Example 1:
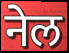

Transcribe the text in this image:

नेल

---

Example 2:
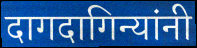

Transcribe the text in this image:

दागदागिन्यांनी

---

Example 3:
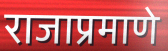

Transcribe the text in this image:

राजाप्रमाणे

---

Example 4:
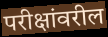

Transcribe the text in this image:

परीक्षांवरील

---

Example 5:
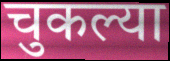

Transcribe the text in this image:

चुकल्या